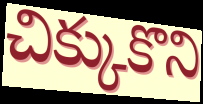
చిక్కుకొని